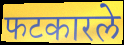
फटकारले